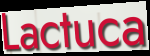
Lactuca